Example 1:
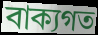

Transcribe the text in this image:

বাক্যগত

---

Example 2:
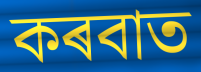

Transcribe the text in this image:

কৰবাত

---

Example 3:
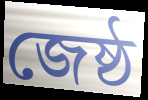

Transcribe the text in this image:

জেষ্ঠ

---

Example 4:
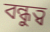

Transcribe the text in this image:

বন্ধুত্ব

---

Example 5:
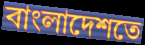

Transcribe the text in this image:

বাংলাদেশতে